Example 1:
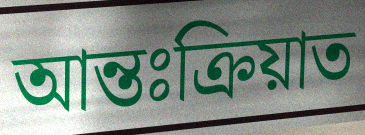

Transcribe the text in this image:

আন্তঃক্ৰিয়াত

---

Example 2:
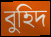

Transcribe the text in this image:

বুহিদ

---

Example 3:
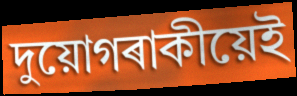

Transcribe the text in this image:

দুয়োগৰাকীয়েই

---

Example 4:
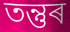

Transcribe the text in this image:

তন্তুৰ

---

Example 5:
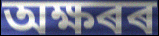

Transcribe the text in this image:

অক্ষৰৰ